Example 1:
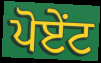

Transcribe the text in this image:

ਪੋਏਂਟ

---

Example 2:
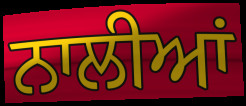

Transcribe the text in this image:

ਨਾਲੀਆਂ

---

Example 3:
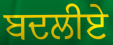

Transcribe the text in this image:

ਬਦਲੀਏ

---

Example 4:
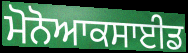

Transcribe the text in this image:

ਮੋਨੋਆਕਸਾਈਡ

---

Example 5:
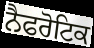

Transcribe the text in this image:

ਨੈਫਰੋਟਿਕ